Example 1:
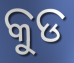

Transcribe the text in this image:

କୁଡ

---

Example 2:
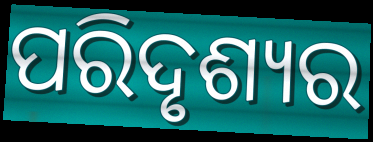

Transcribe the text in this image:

ପରିଦୃଶ୍ୟର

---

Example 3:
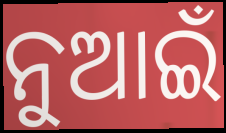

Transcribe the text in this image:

ନୁଆଇଁ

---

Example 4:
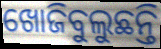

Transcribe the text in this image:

ଖୋଜିବୁଲୁଛନ୍ତି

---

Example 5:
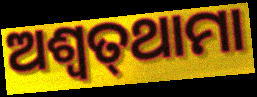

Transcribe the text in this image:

ଅଶ୍ବତ୍‌ଥାମା